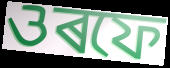
ওৰফে